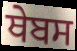
ਥੇਬਸ